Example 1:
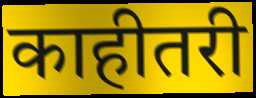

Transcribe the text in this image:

काहीतरी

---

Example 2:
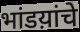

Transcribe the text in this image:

भांडय़ांचे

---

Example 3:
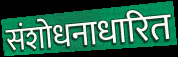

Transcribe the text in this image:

संशोधनाधारित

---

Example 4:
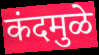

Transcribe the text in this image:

कंदमुळे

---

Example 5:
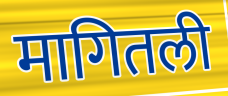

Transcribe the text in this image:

मागितली